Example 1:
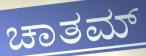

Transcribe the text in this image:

ಚಾತಮ್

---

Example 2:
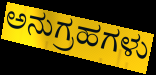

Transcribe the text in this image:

ಅನುಗ್ರಹಗಳು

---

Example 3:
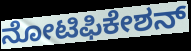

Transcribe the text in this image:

ನೋಟಿಫಿಕೇಶನ್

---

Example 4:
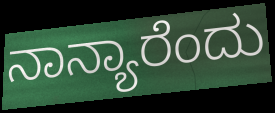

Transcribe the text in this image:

ನಾನ್ಯಾರೆಂದು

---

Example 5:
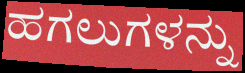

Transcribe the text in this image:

ಹಗಲುಗಳನ್ನು